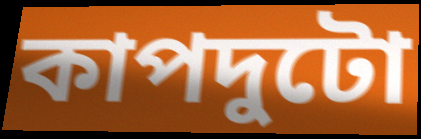
কাপদুটো